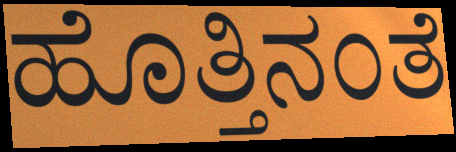
ಹೊತ್ತಿನಂತೆ